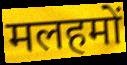
मलहमों